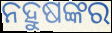
ନହୁଷଙ୍କର